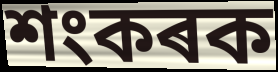
শংকৰক